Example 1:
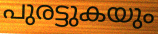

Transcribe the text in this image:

പുരട്ടുകയും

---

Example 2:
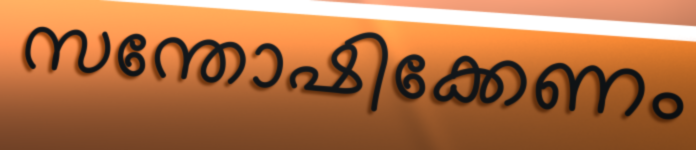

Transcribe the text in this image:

സന്തോഷിക്കേണം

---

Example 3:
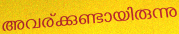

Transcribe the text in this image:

അവര്ക്കുണ്ടായിരുന്നു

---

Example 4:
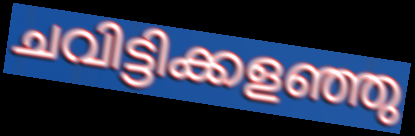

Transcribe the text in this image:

ചവിട്ടിക്കളഞ്ഞു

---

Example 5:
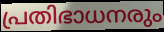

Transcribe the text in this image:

പ്രതിഭാധനരും